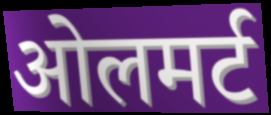
ओलमर्ट